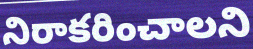
నిరాకరించాలని